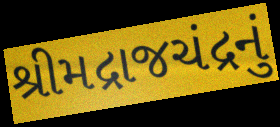
શ્રીમદ્રાજચંદ્રનું